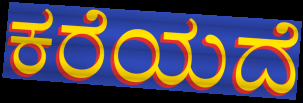
ಕರೆಯದೆ